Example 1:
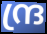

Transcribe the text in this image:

ന്ദ്ര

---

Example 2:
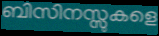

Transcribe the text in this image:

ബിസിനസ്സുകളെ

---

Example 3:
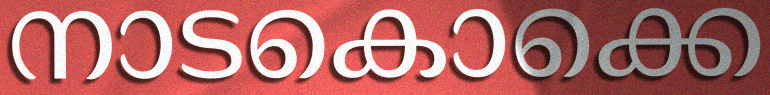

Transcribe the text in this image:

നാടകൊക്കെ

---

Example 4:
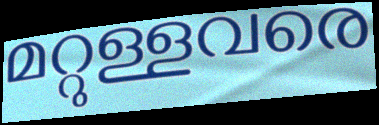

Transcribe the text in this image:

മറ്റുള്ളവരെ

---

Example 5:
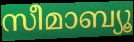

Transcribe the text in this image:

സീമാബ്യൂ